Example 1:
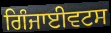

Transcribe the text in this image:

ਗਿੰਜਾਈਵਟਸ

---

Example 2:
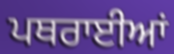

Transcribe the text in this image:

ਪਥਰਾਈਆਂ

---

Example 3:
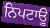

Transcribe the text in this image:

ਨਿਪਟਾਊ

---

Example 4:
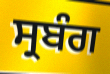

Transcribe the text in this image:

ਸ੍ਰਬੰਗ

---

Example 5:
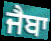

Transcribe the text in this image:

ਜੈਬਾ